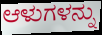
ಆಳುಗಳನ್ನು